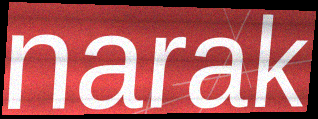
narak